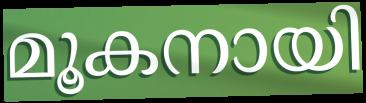
മൂകനായി